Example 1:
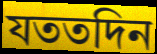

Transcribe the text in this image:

যততদিন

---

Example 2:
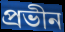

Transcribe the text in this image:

প্রভীন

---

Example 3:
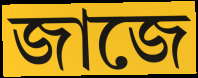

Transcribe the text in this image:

জাজে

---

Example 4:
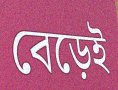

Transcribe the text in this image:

বেড়েই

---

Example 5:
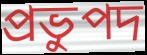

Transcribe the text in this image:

প্রভুপদ